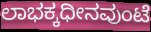
ಲಾಭಕ್ಕಧೀನವುಂಟೆ